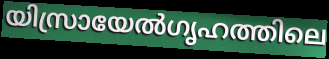
യിസ്രായേൽഗൃഹത്തിലെ